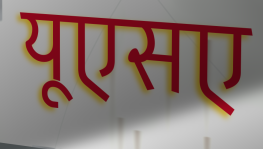
यूएसए